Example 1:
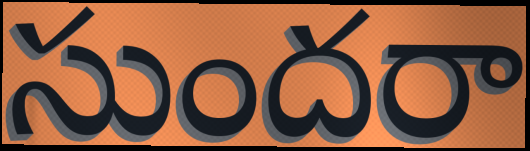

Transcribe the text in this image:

సుందరా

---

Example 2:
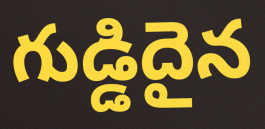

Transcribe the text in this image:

గుడ్డిదైన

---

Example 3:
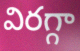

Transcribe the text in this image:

విరగ్గా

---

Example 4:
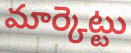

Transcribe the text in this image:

మార్కెట్టు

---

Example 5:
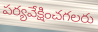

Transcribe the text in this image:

పర్యవేక్షించగలరు